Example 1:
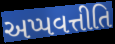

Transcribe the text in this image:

અપ્પવત્તીતિ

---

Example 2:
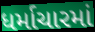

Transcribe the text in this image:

ધર્માચારમાં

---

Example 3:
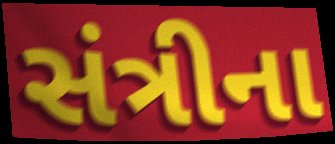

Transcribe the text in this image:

સંત્રીના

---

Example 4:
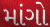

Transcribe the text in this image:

માંગો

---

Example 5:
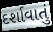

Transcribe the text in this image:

દર્શાવાતું